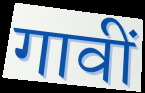
गावीं